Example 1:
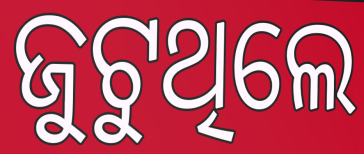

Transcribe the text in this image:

ଜୁଟୁଥିଲେ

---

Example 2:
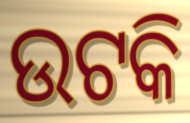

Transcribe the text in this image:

ଉଟକି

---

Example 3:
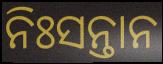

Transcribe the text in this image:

ନିଃସନ୍ତାନ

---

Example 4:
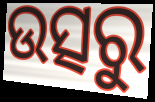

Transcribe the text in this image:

ଉତ୍ସରୁ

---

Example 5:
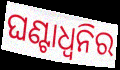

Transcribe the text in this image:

ଘଣ୍ଟାଧ୍ୱନିର